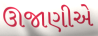
ઊજાણીએ